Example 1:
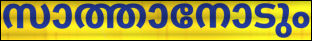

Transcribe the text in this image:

സാത്താനോടും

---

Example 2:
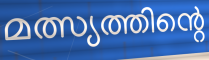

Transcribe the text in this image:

മത്സ്യത്തിന്റെ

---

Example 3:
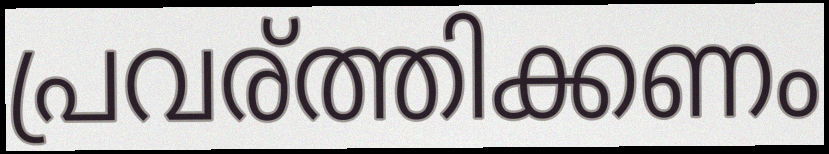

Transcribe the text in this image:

പ്രവര്ത്തിക്കണം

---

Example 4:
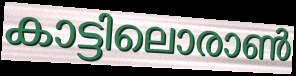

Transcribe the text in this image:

കാട്ടിലൊരാൺ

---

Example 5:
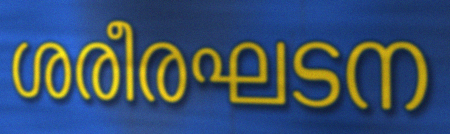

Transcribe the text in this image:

ശരീരഘടന